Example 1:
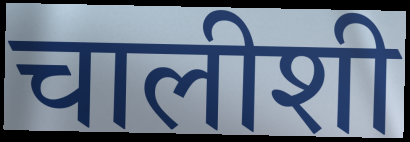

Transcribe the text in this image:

चालीशी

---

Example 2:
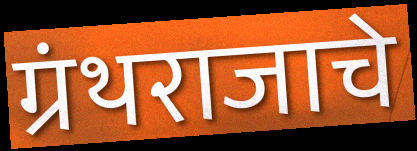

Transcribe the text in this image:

ग्रंथराजाचे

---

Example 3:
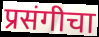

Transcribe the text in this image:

प्रसंगीचा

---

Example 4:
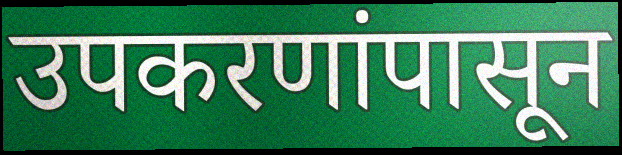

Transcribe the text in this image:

उपकरणांपासून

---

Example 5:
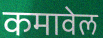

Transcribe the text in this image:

कमावेल